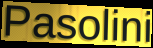
Pasolini